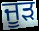
ਜੂੜ